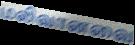
மலிவானவை